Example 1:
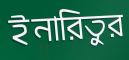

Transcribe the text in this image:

ইনারিতুর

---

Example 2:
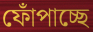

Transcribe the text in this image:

ফোঁপাচ্ছে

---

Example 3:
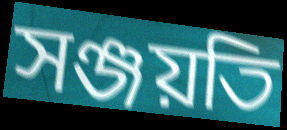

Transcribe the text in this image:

সঞ্জয়তি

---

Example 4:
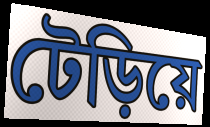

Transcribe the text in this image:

টেড়িয়ে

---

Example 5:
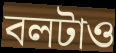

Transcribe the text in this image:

বলটাও